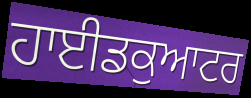
ਹਾਈਡਕੁਆਟਰ